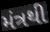
મંત્રથી